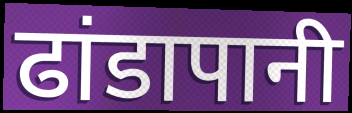
ढांडापानी